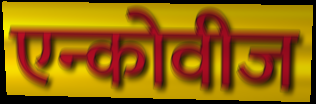
एन्कोवीज